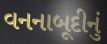
વનનાબૂદીનું